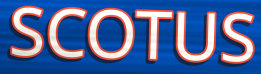
SCOTUS